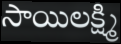
సాయిలక్ష్మి